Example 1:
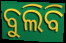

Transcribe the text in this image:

ବୁଲିବି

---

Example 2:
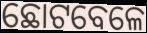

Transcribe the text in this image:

ଛୋଟବେଳେ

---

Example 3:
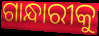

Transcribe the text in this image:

ଗାନ୍ଧାରୀକୁ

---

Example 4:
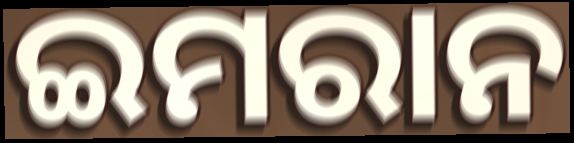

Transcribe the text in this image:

ଇମରାନ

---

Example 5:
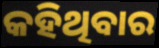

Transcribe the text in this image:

କହିଥିବାର